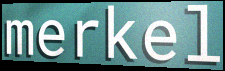
merkel